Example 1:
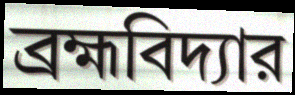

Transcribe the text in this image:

ব্রহ্মবিদ্যার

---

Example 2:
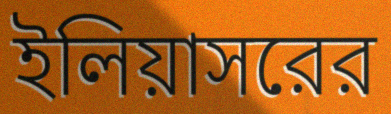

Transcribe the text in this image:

ইলিয়াসরের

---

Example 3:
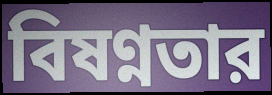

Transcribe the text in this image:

বিষণ্নতার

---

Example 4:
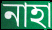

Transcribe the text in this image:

নাহা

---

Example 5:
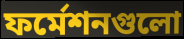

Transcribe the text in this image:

ফর্মেশনগুলো